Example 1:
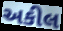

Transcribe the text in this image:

અકીલ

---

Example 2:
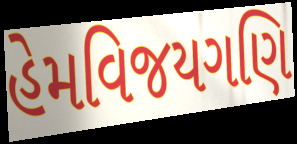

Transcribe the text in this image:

હેમવિજયગણિ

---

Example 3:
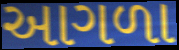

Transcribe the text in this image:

આગળા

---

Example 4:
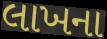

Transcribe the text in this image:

લાખના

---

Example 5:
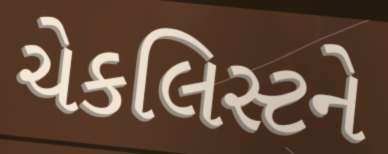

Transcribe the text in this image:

ચેકલિસ્ટને